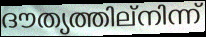
ദൗത്യത്തില്നിന്ന്